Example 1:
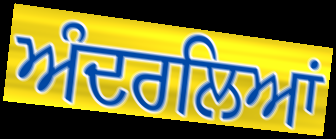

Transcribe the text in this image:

ਅੰਦਰਲਿਆਂ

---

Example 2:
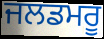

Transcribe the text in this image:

ਜਲਡਮਰੂ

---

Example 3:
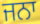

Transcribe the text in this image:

ਜਨਾ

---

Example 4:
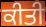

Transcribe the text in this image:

ਕੀਤੀ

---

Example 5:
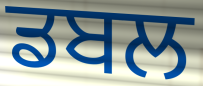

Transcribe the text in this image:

ਡਬਲ